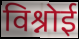
विश्नोई